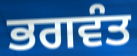
ਭਗਵੰਤ